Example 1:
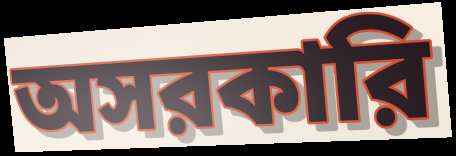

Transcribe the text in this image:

অসরকারি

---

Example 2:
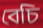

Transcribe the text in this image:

বেচি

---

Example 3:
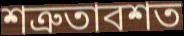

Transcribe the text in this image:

শত্রুতাবশত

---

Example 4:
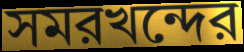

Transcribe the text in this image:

সমরখন্দের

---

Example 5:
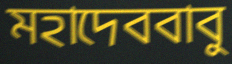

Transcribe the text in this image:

মহাদেববাবু